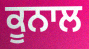
ਕੂਨਾਲ